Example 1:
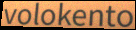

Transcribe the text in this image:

volokento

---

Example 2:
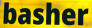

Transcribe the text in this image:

basher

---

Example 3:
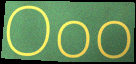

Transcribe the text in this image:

Ooo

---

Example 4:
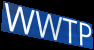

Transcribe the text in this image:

WWTP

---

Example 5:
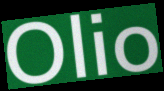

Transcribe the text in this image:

Olio